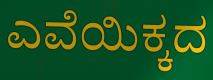
ಎವೆಯಿಕ್ಕದ